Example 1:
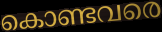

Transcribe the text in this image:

കൊണ്ടവരെ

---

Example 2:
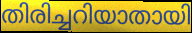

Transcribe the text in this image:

തിരിച്ചറിയാതായി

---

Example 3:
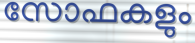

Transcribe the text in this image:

സോഫകളും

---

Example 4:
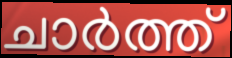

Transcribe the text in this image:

ചാർത്ത്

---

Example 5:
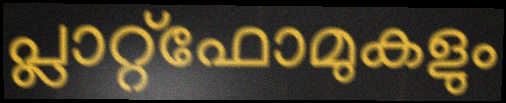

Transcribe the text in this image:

പ്ലാറ്റ്ഫോമുകളും